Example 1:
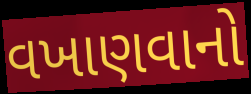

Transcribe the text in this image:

વખાણવાનો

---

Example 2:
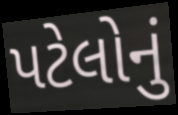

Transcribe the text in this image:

પટેલોનું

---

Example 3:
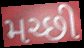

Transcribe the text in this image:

મચ્છી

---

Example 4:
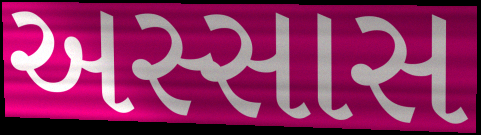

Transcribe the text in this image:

અસ્સાસ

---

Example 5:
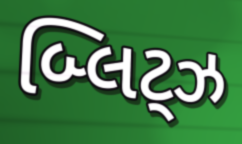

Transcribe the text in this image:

બ્લિટ્ઝ